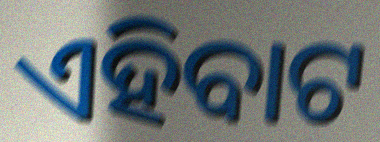
ଏହିବାଟ